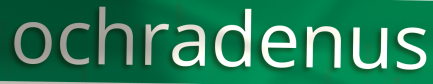
ochradenus